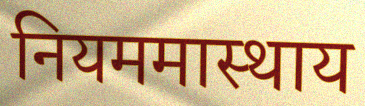
नियममास्थाय